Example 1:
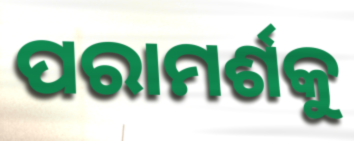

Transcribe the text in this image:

ପରାମର୍ଶକୁ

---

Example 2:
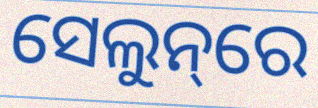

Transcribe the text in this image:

ସେଲୁନ୍‌ରେ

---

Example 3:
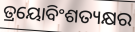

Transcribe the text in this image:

ତ୍ରୟୋବିଂଶତ୍ୟକ୍ଷର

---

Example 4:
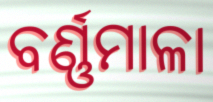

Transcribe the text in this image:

ବର୍ଣ୍ଣମାଳା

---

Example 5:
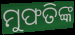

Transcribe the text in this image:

ମୁଫତିଙ୍କ